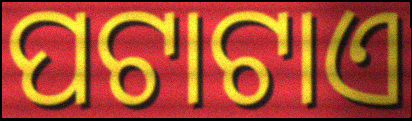
ପଟାଟାଏ